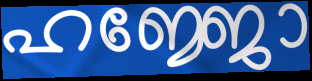
ഹജ്ജോ